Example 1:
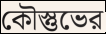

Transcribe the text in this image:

কৌস্তুভের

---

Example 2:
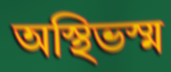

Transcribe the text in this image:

অস্থিভস্ম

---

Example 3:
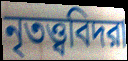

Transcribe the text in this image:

নৃতত্ত্ববিদরা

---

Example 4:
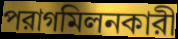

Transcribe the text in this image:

পরাগমিলনকারী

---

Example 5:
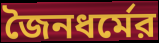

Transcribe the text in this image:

জৈনধর্মের